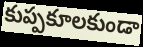
కుప్పకూలకుండా